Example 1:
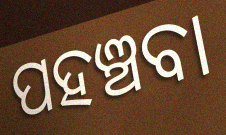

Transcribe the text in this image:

ପହଞ୍ଚବା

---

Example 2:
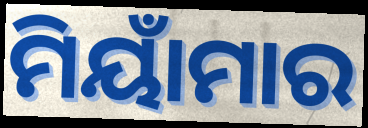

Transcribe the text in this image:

ମିୟାଁମାର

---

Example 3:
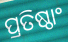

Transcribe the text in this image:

ପ୍ରତିଷ୍ଠାଂ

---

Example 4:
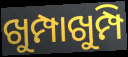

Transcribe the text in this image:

ଖୁମ୍ପାଖୁମ୍ପି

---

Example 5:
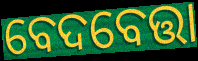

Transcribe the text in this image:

ବେଦବେତ୍ତା